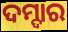
ଦମ୍ଦାର